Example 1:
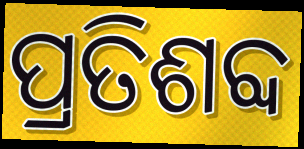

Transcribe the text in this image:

ପ୍ରତିଶବ୍ଦ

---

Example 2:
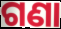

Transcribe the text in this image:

ଗଣା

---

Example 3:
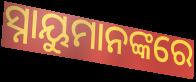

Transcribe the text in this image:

ସ୍ନାୟୁମାନଙ୍କରେ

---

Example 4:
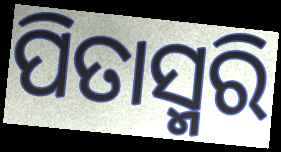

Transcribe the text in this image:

ପିତାସ୍ମରି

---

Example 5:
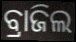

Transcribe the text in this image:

ବ୍ରାଜିଲ